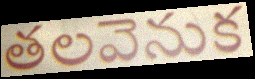
తలవెనుక